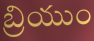
బ్రియుం